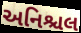
અનિશ્ચલ